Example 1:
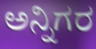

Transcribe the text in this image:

ಅನ್ನಿಗರ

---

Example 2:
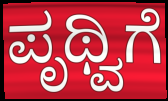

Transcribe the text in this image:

ಪೃಥ್ವಿಗೆ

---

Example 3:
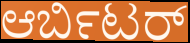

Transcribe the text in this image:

ಆರ್ಬಿಟರ್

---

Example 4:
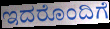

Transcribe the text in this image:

ಇದರೊಂದಿಗೆ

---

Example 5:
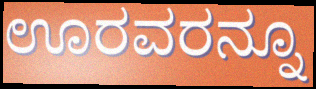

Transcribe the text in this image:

ಊರವರನ್ನೂ